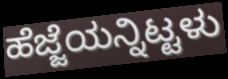
ಹೆಜ್ಜೆಯನ್ನಿಟ್ಟಳು